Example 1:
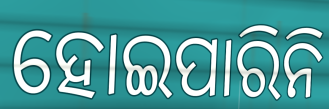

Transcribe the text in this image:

ହୋଇପାରିନି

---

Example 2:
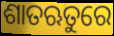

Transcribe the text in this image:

ଶାତଋତୁରେ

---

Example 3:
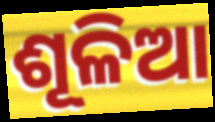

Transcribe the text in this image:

ଶୂଳିଆ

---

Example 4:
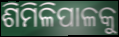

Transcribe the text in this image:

ଶିମିଳିପାଳକୁ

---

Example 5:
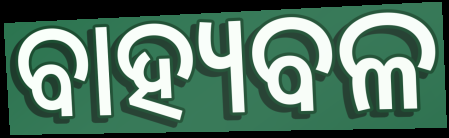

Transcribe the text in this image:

ବାହ୍ୟବଳ